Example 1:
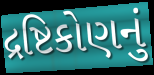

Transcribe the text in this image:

દ્રષ્ટિકોણનું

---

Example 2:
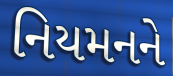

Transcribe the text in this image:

નિયમનને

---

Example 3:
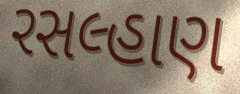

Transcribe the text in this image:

રસલ્હાણ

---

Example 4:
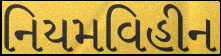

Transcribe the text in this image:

નિયમવિહીન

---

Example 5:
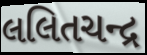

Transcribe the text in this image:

લલિતચન્દ્ર